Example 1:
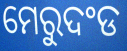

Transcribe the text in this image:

ମେରୁଦଂଡ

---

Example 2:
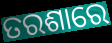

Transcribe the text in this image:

ତରଶାରେ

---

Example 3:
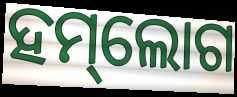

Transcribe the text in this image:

ହମ୍‌ଲୋଗ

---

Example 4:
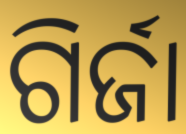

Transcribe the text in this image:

ଗିର୍ଜା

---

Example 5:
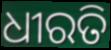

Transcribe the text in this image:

ଧୀରତି